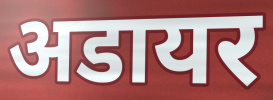
अडायर